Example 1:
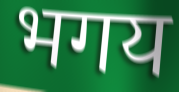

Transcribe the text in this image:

भगय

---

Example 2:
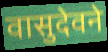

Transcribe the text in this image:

वासुदेवने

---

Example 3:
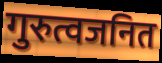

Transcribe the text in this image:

गुरुत्वजनित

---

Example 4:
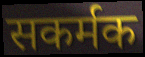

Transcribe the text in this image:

सकर्मक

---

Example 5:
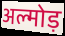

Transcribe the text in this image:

अल्मोड़